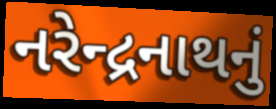
નરેન્દ્રનાથનું